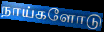
நாய்களோடு